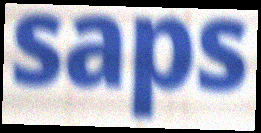
saps